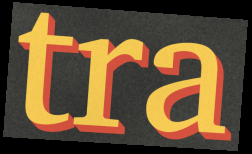
tra